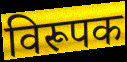
विरूपक